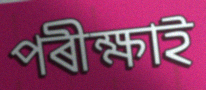
পৰীক্ষাই